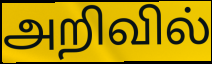
அறிவில்